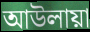
আউলায়া